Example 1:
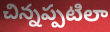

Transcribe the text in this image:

చిన్నప్పటిలా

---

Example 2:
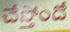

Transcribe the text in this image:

చేస్తోందో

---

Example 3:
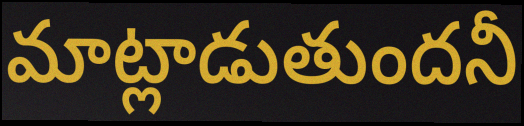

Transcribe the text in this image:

మాట్లాడుతుందనీ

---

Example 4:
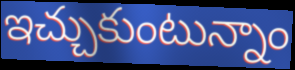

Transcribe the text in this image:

ఇచ్చుకుంటున్నాం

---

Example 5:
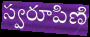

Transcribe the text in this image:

స్వరూపిణి